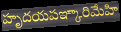
హృదయపఞ్కారిమేహి